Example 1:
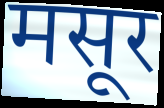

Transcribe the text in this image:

मसूर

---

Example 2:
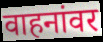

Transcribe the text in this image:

वाहनांवर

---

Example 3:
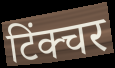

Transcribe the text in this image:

टिंक्चर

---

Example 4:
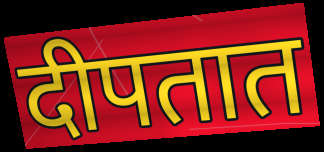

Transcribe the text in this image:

दीपतात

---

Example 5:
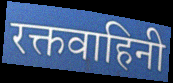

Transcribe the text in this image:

रक्तवाहिनी